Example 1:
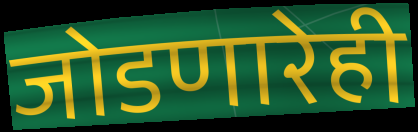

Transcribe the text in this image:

जोडणारेही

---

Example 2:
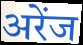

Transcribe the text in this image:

अरेंज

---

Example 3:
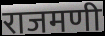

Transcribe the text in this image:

राजमणी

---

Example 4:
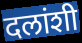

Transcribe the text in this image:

दलांशी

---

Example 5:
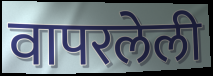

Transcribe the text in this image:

वापरलेली